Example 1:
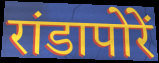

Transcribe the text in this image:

रांडापोरें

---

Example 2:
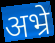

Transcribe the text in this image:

अभ्रे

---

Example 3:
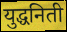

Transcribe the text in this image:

युद्धनिती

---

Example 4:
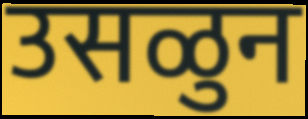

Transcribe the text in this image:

उसळुन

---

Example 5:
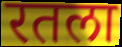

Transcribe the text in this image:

रतला